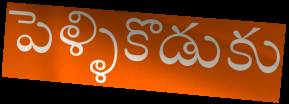
పెళ్ళికొడుకు